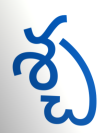
శ్చ